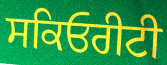
ਸਕਿਓਰੀਟੀ